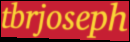
tbrjoseph